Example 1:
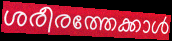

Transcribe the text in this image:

ശരീരത്തേക്കാൾ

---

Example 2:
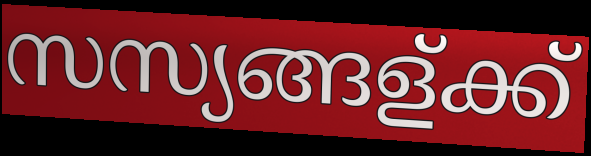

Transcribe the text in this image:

സസ്യങ്ങള്ക്ക്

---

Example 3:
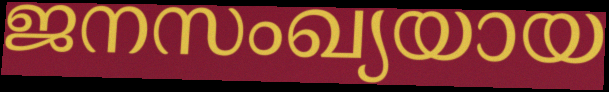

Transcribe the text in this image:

ജനസംഖ്യയായ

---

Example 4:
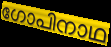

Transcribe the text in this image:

ഗോപിനാഥ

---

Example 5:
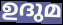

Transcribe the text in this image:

ഉദുമ